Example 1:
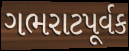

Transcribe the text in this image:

ગભરાટપૂર્વક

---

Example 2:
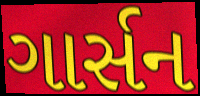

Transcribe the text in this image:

ગાર્સન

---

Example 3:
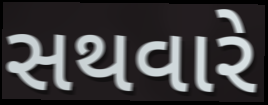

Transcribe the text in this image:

સથવારે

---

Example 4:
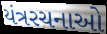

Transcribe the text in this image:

યંત્રરચનાઓ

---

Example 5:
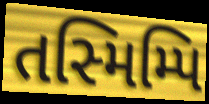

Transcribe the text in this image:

તસ્મિમ્પિ